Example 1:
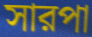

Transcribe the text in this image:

সারপা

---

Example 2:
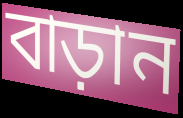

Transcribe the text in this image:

বাড়ান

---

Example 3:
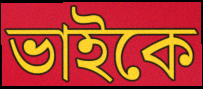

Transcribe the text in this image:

ভাইকে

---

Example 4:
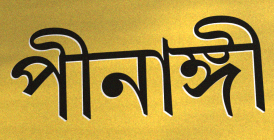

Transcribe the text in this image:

পীনাঙ্গী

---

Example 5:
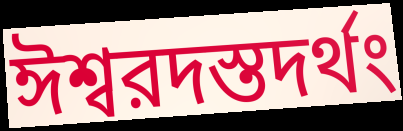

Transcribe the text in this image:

ঈশ্বরদস্তদর্থং